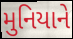
મુનિયાને